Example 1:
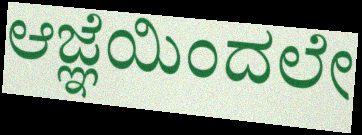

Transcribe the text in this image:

ಆಜ್ಞೆಯಿಂದಲೇ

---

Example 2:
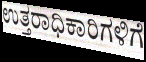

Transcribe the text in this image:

ಉತ್ತರಾಧಿಕಾರಿಗಳಿಗೆ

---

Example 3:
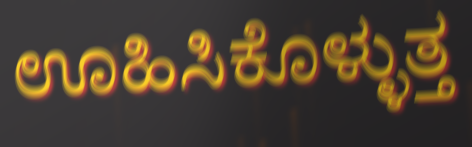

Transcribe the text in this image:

ಊಹಿಸಿಕೊಳ್ಳುತ್ತ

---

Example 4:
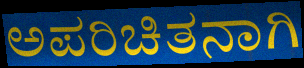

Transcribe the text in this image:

ಅಪರಿಚಿತನಾಗಿ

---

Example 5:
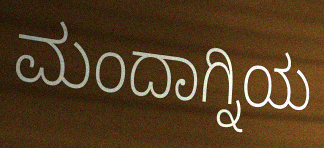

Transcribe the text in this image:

ಮಂದಾಗ್ನಿಯ